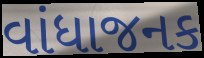
વાંધાજનક